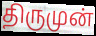
திருமுன்